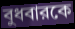
বুধবারকে